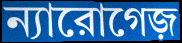
ন্যারোগেজ়